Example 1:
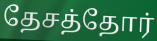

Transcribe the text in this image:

தேசத்தோர்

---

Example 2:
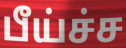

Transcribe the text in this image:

பீய்ச்ச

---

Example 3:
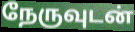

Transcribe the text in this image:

நேருவுடன்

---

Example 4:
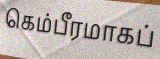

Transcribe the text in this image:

கெம்பீரமாகப்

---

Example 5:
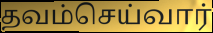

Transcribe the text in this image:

தவம்செய்வார்